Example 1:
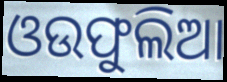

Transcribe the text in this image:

ଓଉଫୁଲିଆ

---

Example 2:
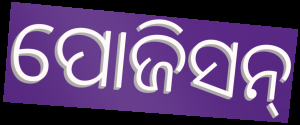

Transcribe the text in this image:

ପୋଜିସନ୍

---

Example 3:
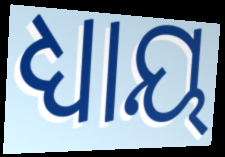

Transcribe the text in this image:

ଧ୍ୟାୟ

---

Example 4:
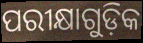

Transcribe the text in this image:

ପରୀକ୍ଷାଗୁଡ଼ିକ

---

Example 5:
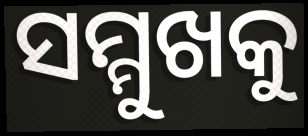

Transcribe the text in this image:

ସମ୍ମୁଖକୁ